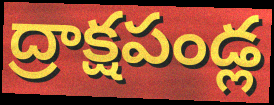
ద్రాక్షపండ్ల